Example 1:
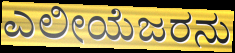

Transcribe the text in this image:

ಎಲೀಯೆಜರನು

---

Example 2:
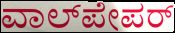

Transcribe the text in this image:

ವಾಲ್‌ಪೇಪರ್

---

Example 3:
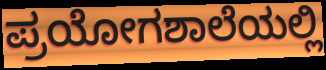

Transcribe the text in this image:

ಪ್ರಯೋಗಶಾಲೆಯಲ್ಲಿ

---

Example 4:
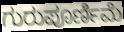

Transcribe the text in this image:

ಗುರುಪೂರ್ಣಿಮೆ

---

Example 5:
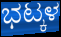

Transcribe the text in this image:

ಭಟ್ಕಳ